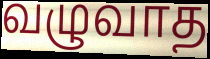
வழுவாத